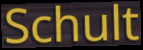
Schult